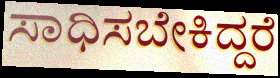
ಸಾಧಿಸಬೇಕಿದ್ದರೆ